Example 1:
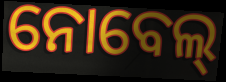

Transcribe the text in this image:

ନୋବେଲ୍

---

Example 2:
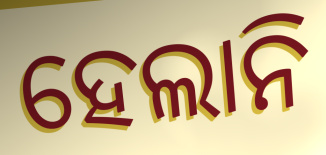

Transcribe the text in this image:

ହେଲାନି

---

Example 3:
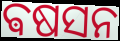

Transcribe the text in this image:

ଵଷସନ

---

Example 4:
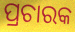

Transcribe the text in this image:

ପ୍ରଚାରକ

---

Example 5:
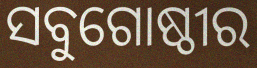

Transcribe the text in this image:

ସବୁଗୋଷ୍ଠୀର